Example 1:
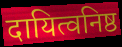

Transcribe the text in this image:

दायित्वनिष्ठ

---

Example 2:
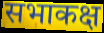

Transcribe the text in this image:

सभाकक्ष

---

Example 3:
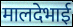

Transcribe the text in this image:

मालदेभाई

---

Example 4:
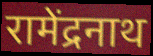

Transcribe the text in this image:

रामेंद्रनाथ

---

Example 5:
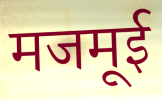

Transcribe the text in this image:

मजमूई